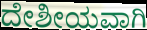
ದೇಶೀಯವಾಗಿ